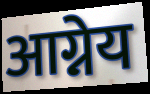
आग्नेय